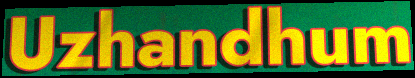
Uzhandhum